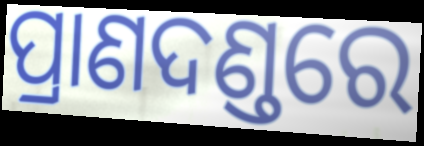
ପ୍ରାଣଦଣ୍ଡରେ